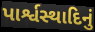
પાર્શ્વસ્થાદિનું